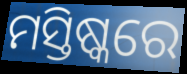
ମସ୍ତିଷ୍କରେ